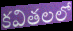
కవితలలో